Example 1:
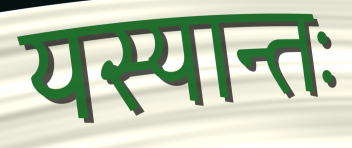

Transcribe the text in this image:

यस्यान्तः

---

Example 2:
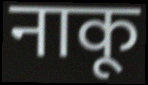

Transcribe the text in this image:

नाकू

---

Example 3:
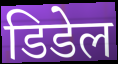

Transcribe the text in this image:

डिडेल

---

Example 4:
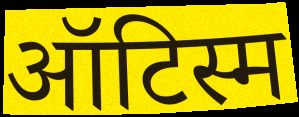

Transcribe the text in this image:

ऑटिस्म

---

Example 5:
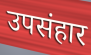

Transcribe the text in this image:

उपसंहार